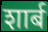
शार्ब